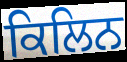
ਕਿਲਿਨ